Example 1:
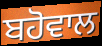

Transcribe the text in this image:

ਬਹੋਵਾਲ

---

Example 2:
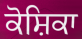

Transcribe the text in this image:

ਕੋਸ਼ਿਕਾ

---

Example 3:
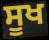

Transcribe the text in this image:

ਸੂਖ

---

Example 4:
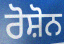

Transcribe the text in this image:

ਰੋਸ਼ੋਨ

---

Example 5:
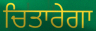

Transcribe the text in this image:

ਚਿਤਾਰੇਗਾ